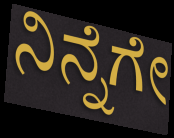
ನಿನ್ನೆಗೇ